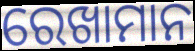
ରେଖାମାନ